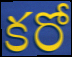
కరో